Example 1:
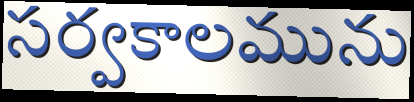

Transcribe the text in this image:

సర్వకాలమును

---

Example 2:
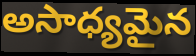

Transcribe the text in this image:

అసాధ్యమైన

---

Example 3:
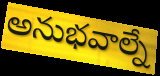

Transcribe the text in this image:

అనుభవాల్నే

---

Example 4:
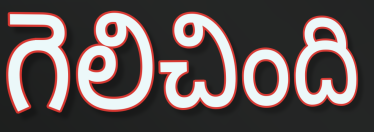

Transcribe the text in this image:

గెలిచింది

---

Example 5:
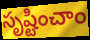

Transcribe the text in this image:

సృష్టించాం